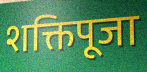
शक्तिपूजा